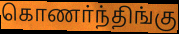
கொணர்ந்திங்கு